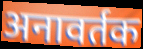
अनावर्तक